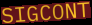
SIGCONT